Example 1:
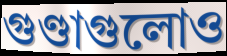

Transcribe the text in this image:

গুণ্ডাগুলোও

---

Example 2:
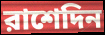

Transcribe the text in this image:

রাশেদিন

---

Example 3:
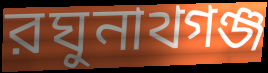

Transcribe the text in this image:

রঘুনাথগঞ্জ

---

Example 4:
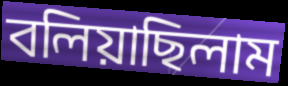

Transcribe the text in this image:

বলিয়াছিলাম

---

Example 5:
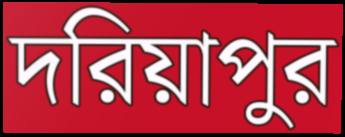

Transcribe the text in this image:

দরিয়াপুর